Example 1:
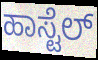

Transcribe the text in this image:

ಹಾಸ್ಟೆಲ್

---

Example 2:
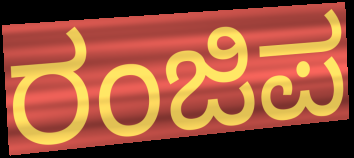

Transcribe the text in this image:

ರಂಜಿಪ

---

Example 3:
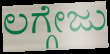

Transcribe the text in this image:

ಲಗ್ಗೇಜು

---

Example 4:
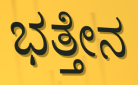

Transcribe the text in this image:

ಭತ್ತೇನ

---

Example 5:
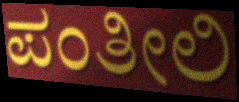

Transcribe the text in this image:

ಪಂತೀಲಿ